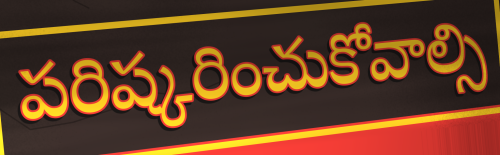
పరిష్కరించుకోవాల్సి